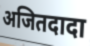
अजितदादा